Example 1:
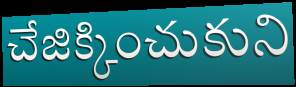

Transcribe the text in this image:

చేజిక్కించుకుని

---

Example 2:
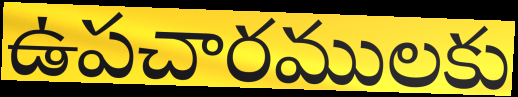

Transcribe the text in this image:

ఉపచారములకు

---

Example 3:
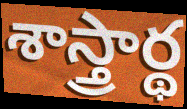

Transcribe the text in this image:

శాస్త్రార్థ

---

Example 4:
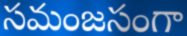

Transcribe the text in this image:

సమంజసంగా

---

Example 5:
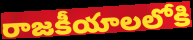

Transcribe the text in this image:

రాజకీయాలలోకి